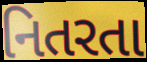
નિતરતા